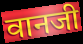
वानजी